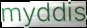
myddis